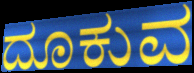
ದೂಕುವ